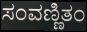
ಸಂವಣ್ಣಿತಂ